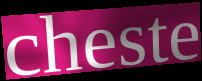
cheste